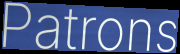
Patrons